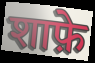
शाफ़े